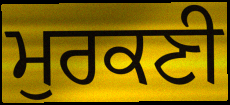
ਮੁਰਕਣੀ